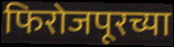
फिरोजपूरच्या